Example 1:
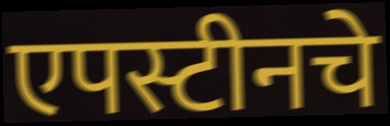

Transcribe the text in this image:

एपस्टीनचे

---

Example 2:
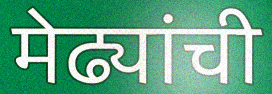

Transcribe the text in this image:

मेढ्यांची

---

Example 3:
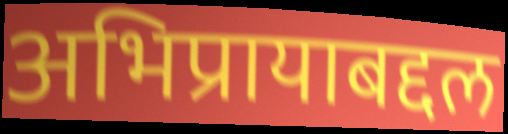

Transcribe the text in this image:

अभिप्रायाबद्दल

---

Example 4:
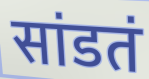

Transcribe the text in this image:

सांडतं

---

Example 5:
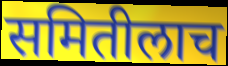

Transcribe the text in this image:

समितीलाच